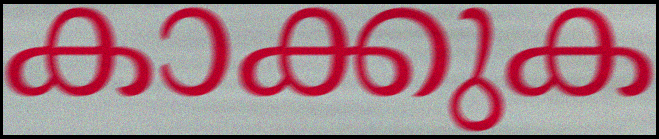
കാക്കുക